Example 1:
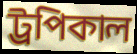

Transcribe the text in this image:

ট্রপিকাল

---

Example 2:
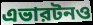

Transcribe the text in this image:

এভারটনও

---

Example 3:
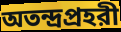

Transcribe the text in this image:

অতন্দ্রপ্রহরী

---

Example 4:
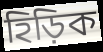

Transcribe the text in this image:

হিড়িক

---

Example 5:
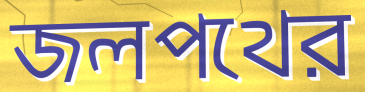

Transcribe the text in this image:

জলপথের